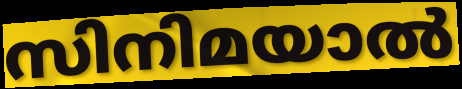
സിനിമയാൽ